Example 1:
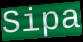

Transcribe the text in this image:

Sipa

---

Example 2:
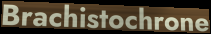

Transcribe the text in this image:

Brachistochrone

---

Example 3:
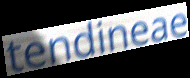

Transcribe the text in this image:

tendineae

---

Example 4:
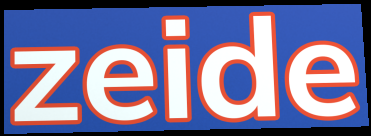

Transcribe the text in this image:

zeide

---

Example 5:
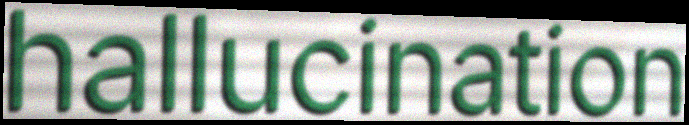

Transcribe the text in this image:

hallucination